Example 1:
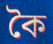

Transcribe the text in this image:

কৈ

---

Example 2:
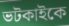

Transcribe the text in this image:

ভটকাইকে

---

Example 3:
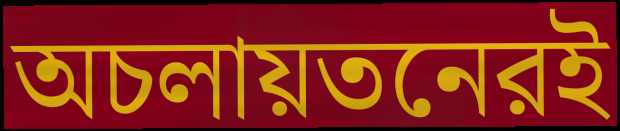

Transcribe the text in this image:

অচলায়তনেরই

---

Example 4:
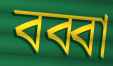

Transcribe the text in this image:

বব্বা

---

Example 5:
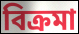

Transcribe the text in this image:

বিক্রমা